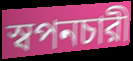
স্বপনচারী